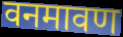
वनमावण